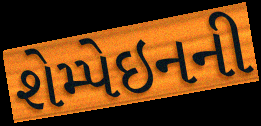
શેમ્પેઇનની